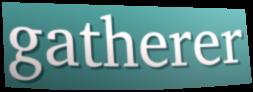
gatherer